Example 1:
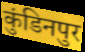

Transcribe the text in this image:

कुंडिनपुर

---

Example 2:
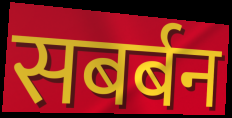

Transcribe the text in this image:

सबर्बन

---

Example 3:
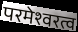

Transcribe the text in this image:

परमेश्वरत्व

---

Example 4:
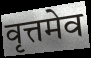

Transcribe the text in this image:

वृत्तमेव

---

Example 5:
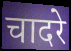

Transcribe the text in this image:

चादरे